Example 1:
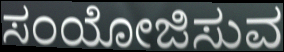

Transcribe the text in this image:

ಸಂಯೋಜಿಸುವ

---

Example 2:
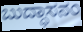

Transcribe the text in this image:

ಬುದ್ಧಾಸನಂ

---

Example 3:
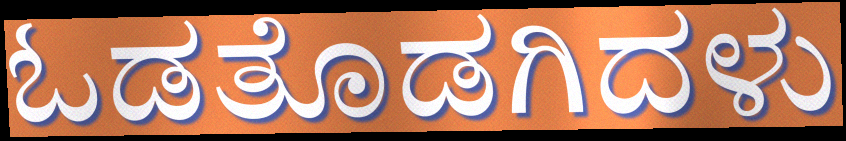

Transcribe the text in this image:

ಓಡತೊಡಗಿದಳು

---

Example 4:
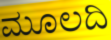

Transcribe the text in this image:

ಮೂಲದಿ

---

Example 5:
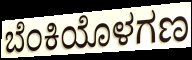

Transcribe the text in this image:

ಬೆಂಕಿಯೊಳಗಣ